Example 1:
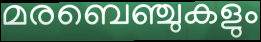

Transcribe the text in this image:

മരബെഞ്ചുകളും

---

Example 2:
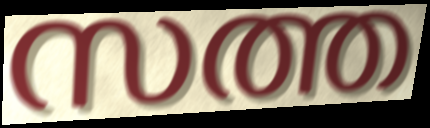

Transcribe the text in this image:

സത്ത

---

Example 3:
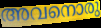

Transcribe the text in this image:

അവനൊരു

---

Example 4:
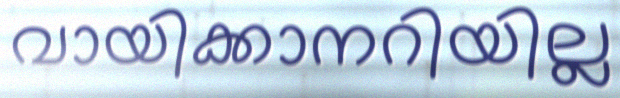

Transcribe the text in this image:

വായിക്കാനറിയില്ല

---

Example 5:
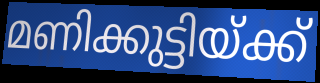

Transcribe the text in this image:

മണിക്കുട്ടിയ്ക്ക്